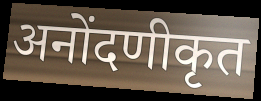
अनोंदणीकृत